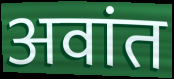
अवांत